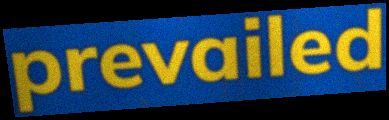
prevailed